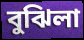
বুঝিলা